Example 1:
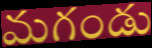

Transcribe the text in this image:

మగండు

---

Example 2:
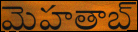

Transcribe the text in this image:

మెహతాబ్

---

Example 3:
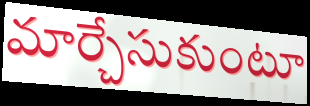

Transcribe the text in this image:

మార్చేసుకుంటూ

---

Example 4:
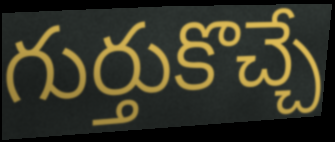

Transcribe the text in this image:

గుర్తుకొచ్చే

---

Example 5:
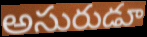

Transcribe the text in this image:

అసురుడూ